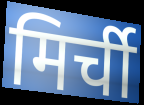
मिर्ची